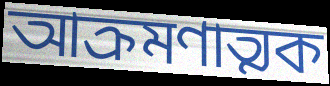
আক্ৰমণাত্মক